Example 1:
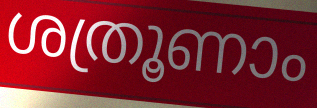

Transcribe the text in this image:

ശത്രൂണാം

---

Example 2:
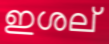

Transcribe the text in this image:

ഇശല്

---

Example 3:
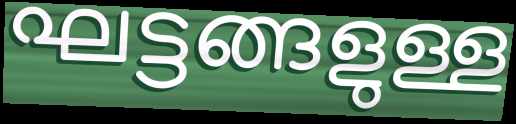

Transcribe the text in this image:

ഘട്ടങ്ങളുള്ള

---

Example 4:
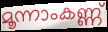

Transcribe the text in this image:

മൂന്നാംകണ്ണ്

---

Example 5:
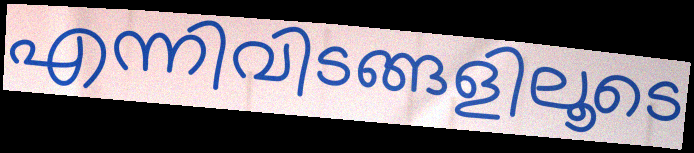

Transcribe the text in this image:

എന്നിവിടങ്ങളിലൂടെ